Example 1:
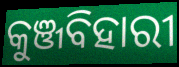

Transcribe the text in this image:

କୁଞ୍ଜବିହାରୀ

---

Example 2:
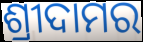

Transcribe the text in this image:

ଶ୍ରୀଦାମର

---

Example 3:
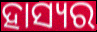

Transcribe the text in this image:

ହାସ୍ୟର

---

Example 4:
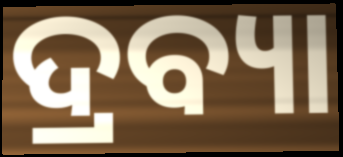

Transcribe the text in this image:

ଦ୍ରବ୍ୟା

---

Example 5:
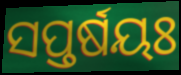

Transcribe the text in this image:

ସପ୍ତର୍ଷୟଃ